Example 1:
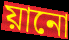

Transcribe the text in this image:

য়ানো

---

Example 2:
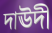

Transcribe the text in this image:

দাঊদী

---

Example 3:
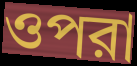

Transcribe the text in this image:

ওপরা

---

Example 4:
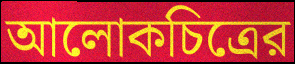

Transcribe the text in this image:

আলোকচিত্রের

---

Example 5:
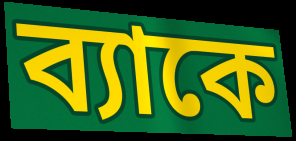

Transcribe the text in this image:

ব্যাকে